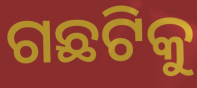
ଗଛଟିକୁ